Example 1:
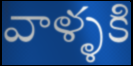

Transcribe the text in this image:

వాళ్ళకి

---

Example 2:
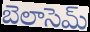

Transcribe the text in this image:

బెలాసెమ్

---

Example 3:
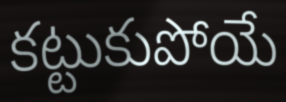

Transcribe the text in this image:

కట్టుకుపోయే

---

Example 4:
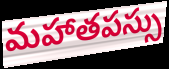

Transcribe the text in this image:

మహాతపస్సు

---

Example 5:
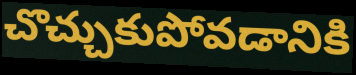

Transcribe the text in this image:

చొచ్చుకుపోవడానికి